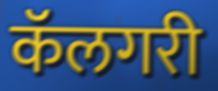
कॅलगरी